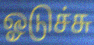
ஓடுச்சு